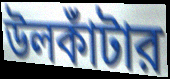
উলকাঁটার